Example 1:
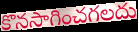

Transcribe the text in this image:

కొనసాగించగలదు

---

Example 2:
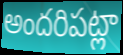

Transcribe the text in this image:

అందరిపట్లా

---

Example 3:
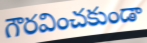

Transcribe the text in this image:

గౌరవించకుండా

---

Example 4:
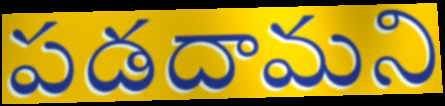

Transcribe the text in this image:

పడదామని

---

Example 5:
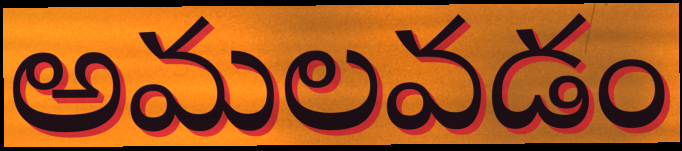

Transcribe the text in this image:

అమలవడం